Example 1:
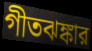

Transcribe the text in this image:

গীতঝঙ্কার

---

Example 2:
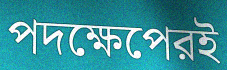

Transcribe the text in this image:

পদক্ষেপেরই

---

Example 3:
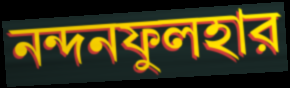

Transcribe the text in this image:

নন্দনফুলহার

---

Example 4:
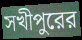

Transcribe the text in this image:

সখীপুরের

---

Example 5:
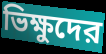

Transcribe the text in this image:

ভিক্ষুদের